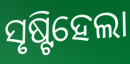
ସୃଷ୍ଟିହେଲା